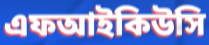
এফআইকিউসি